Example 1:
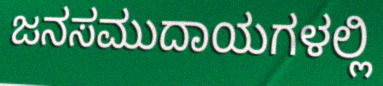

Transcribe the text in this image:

ಜನಸಮುದಾಯಗಳಲ್ಲಿ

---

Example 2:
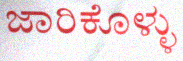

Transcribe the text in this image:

ಜಾರಿಕೊಳ್ಳು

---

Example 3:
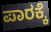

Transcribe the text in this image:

ಪಾರಕ್ಕೆ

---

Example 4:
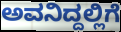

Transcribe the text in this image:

ಅವನಿದ್ದಲ್ಲಿಗೆ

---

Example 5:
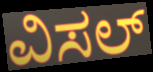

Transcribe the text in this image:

ವಿಸಲ್